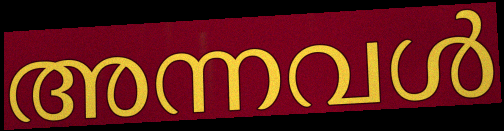
അന്നവൾ